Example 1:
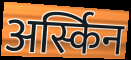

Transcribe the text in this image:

अर्स्किन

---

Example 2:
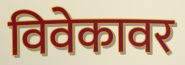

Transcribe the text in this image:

विवेकावर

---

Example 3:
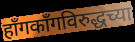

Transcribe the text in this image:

हाँगकाँगविरुद्धच्या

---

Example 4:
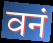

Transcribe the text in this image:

वनं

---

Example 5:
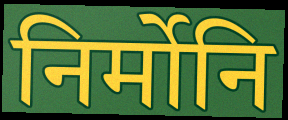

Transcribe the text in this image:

निर्मोनि